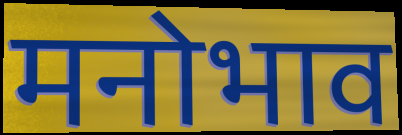
मनोभाव